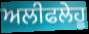
ਅਲੀਫਲੇਹੂ